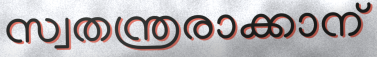
സ്വതന്ത്രരാക്കാന്